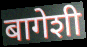
बागेशी